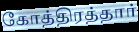
கோத்திரத்தார்